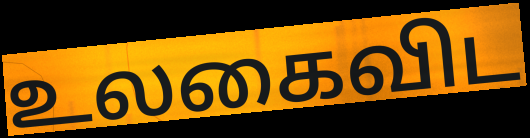
உலகைவிட